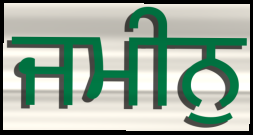
ਜਮੀਨੁ